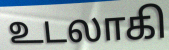
உடலாகி